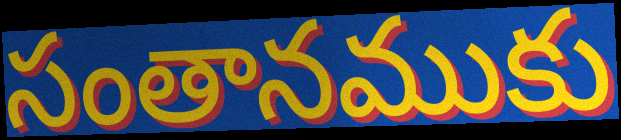
సంతానముకు